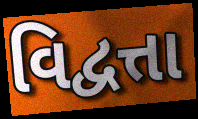
વિદ્વત્તા